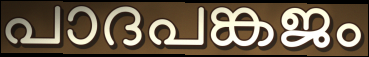
പാദപങ്കജം